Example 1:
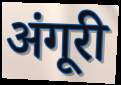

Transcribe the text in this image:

अंगूरी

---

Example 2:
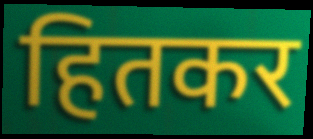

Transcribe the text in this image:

हितकर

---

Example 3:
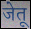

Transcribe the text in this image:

जेतू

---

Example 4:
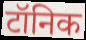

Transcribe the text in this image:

टॉनिक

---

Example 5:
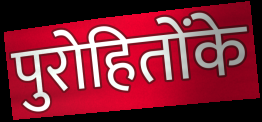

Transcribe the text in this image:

पुरोहितोंके